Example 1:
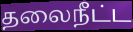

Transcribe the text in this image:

தலைநீட்ட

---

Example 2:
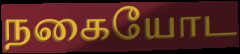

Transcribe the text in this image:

நகையோட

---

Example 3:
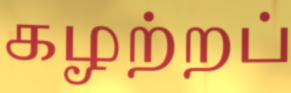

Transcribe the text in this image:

கழற்றப்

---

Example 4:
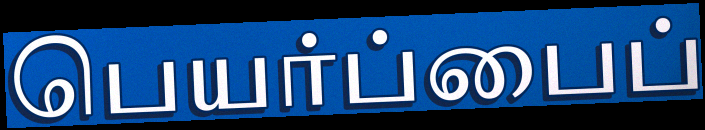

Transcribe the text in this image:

பெயர்ப்பைப்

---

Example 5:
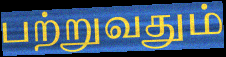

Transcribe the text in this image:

பற்றுவதும்